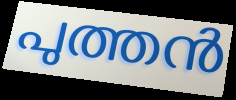
പുത്തൻ